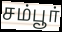
சம்பூர்